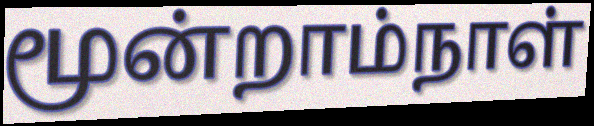
மூன்றாம்நாள்